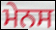
ਮੇਨਸ